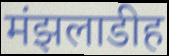
मंझलाडीह